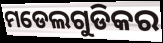
ମଡେଲଗୁଡିକର